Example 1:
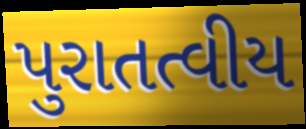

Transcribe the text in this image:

પુરાતત્વીય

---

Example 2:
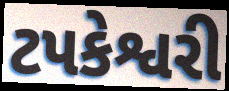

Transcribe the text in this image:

ટપકેશ્વરી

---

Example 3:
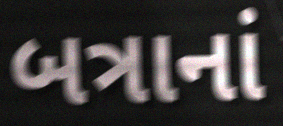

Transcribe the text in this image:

બત્રાનાં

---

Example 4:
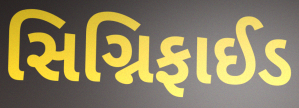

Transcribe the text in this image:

સિગ્નિફાઈડ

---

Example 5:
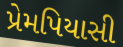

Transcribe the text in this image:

પ્રેમપિયાસી